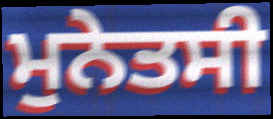
ਮੁਨੇਤਸੀ